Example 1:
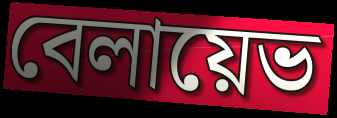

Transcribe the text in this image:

বেলায়েভ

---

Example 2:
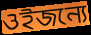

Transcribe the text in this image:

ওইজন্যে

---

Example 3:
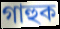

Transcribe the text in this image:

গাহুক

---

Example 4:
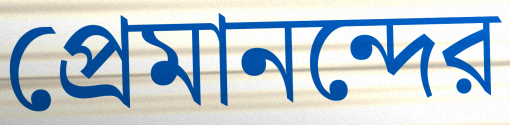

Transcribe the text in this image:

প্রেমানন্দের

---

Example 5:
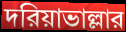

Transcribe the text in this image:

দরিয়াভাল্লার